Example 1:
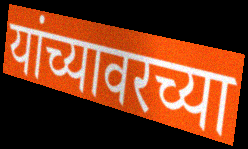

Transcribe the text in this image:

यांच्यावरच्या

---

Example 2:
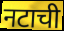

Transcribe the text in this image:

नटाची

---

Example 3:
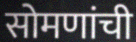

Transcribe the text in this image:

सोमणांची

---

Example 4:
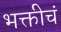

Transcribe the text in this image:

भक्तीचं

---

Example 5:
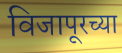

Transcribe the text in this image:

विजापूरच्या